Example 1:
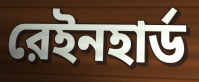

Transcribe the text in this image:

রেইনহার্ড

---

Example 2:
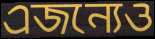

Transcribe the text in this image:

এজন্যেও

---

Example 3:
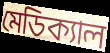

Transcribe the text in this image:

মেডিক্যাল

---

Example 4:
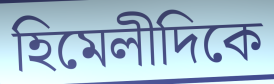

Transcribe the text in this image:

হিমেলীদিকে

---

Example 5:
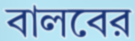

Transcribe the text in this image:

বালবের